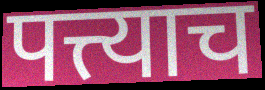
पत्त्याच